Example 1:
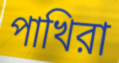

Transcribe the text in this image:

পাখিরা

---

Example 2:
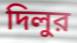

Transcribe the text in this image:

দিলুর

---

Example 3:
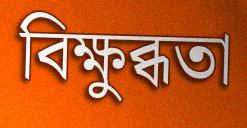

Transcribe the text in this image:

বিক্ষুব্ধতা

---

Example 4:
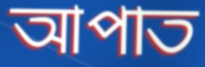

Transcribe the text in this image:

আপাত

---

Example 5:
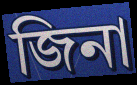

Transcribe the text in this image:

জিনা